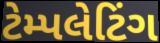
ટેમ્પલેટિંગ